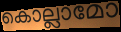
കൊല്ലാമോ